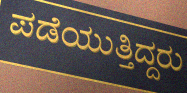
ಪಡೆಯುತ್ತಿದ್ದರು